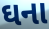
ઘના